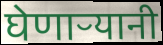
घेणाऱ्यानी